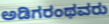
ಅಡಿಗರಂಥವರು